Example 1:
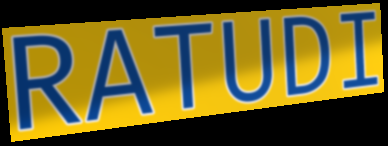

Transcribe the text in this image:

RATUDI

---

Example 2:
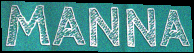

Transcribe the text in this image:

MANNA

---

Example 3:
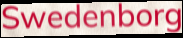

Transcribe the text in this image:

Swedenborg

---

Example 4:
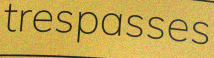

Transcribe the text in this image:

trespasses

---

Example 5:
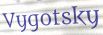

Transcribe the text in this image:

Vygotsky